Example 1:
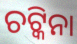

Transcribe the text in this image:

ଚଟ୍କିନା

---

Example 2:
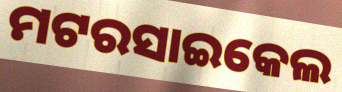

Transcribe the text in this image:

ମଟରସାଇକେଲ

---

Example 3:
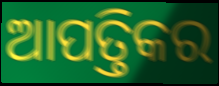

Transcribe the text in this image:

ଆପତ୍ତିକର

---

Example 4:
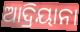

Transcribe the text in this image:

ଆଦ୍ରିୟାନା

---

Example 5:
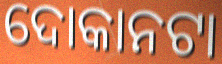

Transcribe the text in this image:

ଦୋକାନଟା